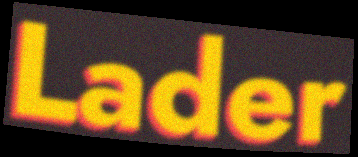
Lader